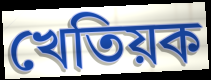
খেতিয়ক